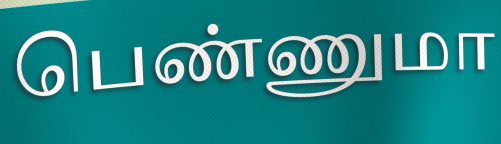
பெண்ணுமா